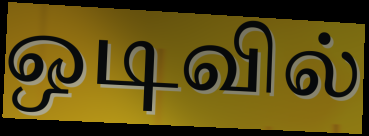
ஒடிவில்